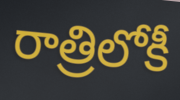
రాత్రిలోకీ